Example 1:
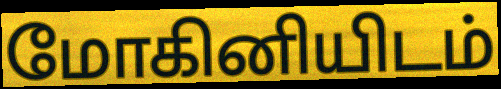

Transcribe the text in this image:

மோகினியிடம்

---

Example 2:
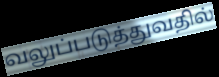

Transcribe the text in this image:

வலுப்படுத்துவதில்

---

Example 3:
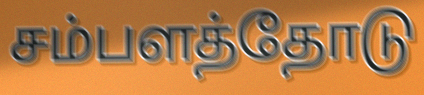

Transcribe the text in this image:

சம்பளத்தோடு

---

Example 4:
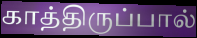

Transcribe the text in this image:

காத்திருப்பால்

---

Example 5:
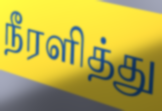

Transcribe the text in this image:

நீரளித்து